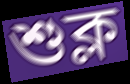
শুক্ল